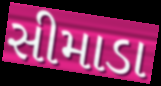
સીમાડા